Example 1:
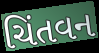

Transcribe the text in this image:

ચિંતવન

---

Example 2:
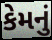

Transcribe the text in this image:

કેમનું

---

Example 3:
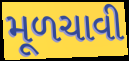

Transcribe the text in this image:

મૂળચાવી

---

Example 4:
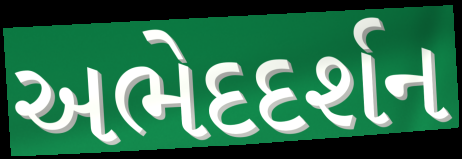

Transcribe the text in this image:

અભેદદર્શન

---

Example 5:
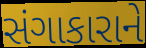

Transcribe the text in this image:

સંગાકારાને